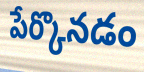
పేర్కొనడం